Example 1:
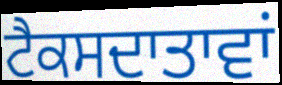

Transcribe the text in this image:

ਟੈਕਸਦਾਤਾਵਾਂ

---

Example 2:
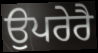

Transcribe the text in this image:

ਉਪਰੇਰੈ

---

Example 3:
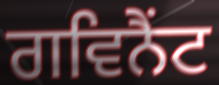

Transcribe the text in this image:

ਗਵਿਨੈਂਟ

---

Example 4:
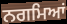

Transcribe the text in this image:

ਨਗਮਿਆਂ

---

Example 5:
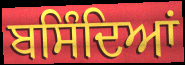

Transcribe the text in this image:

ਬਸਿੰਦਿਆਂ